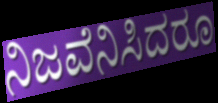
ನಿಜವೆನಿಸಿದರೂ